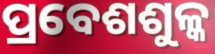
ପ୍ରବେଶଶୁଳ୍କ